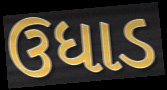
ઉધાડ